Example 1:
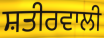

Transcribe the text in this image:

ਸ਼ਤੀਰਵਾਲੀ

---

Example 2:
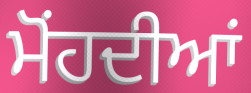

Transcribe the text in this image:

ਮੋਂਹਦੀਆਂ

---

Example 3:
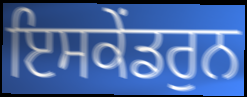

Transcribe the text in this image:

ਇਸਕੇਂਡਰੁਨ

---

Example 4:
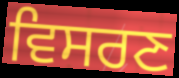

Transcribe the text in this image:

ਵਿਸਰਣ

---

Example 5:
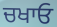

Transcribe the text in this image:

ਚਖਾਓ